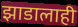
झाडालाही